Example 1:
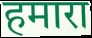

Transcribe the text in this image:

हमारा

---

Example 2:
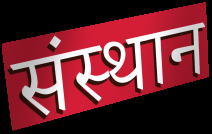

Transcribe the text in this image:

संस्थान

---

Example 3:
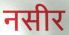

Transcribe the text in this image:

नसीर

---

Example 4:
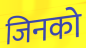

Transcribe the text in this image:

जिनको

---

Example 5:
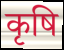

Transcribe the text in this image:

कृषि